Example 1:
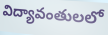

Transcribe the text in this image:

విద్యావంతులలో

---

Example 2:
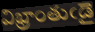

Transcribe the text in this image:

విభ్రాంతుఁడై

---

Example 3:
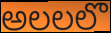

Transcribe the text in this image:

అలలలొ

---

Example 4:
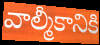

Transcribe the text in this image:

వాల్మీకానికి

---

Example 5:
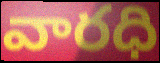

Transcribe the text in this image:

వారధి